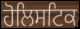
ਹੋਲਿਸਟਿਕ